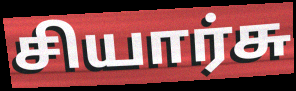
சியார்சு